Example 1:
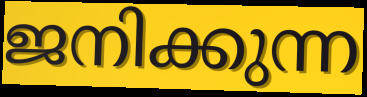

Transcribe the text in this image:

ജനിക്കുന്ന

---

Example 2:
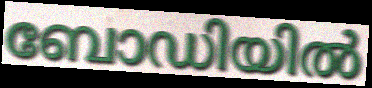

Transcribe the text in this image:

ബോഡിയിൽ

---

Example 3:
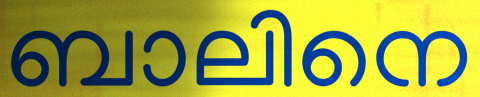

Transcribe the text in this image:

ബാലിനെ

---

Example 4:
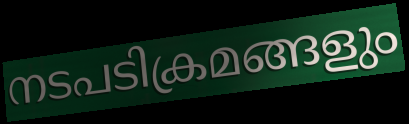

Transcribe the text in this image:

നടപടിക്രമങ്ങളും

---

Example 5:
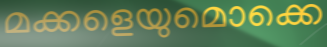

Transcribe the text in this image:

മക്കളെയുമൊക്കെ